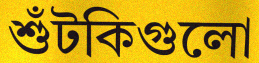
শুঁটকিগুলো